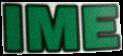
IME